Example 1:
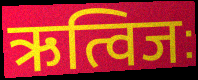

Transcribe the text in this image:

ऋत्विजः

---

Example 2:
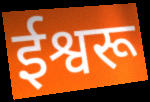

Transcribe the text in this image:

ईश्वरू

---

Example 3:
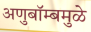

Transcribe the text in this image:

अणुबॉम्बमुळे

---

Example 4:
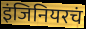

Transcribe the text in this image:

इंजिनियरचं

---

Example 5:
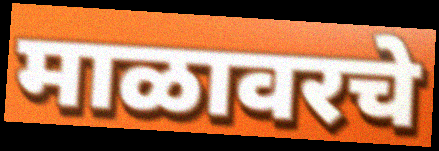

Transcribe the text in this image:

माळावरचे